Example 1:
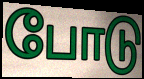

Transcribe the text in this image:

போடு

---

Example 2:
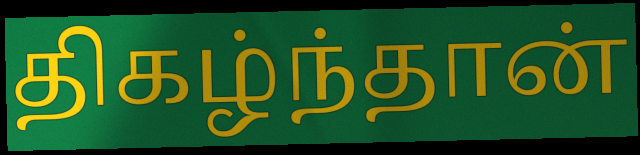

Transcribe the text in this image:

திகழ்ந்தான்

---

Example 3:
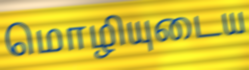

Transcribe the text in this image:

மொழியுடைய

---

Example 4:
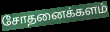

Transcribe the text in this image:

சோதனைக்களம்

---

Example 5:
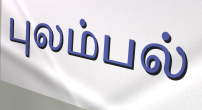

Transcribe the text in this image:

புலம்பல்